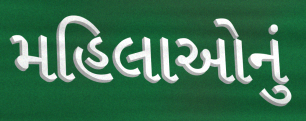
મહિલાઓનું